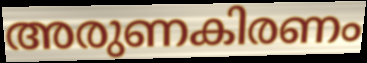
അരുണകിരണം